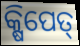
କ୍ଷିପେତ୍